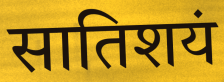
सातिशयं